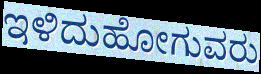
ಇಳಿದುಹೋಗುವರು